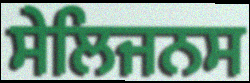
ਸੇਲਿਜਨਸ